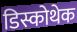
डिस्कोथेक